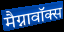
मैग्नावॉक्स